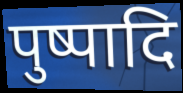
पुष्पादि